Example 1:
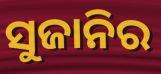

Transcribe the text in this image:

ସୁଜାନିର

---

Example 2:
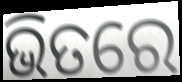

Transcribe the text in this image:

ଭିତରେ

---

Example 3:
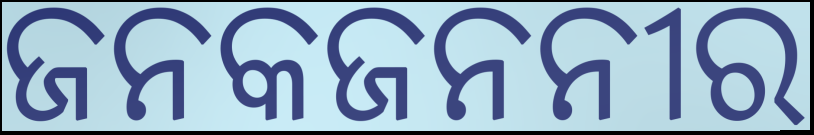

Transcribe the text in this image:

ଜନକଜନନୀର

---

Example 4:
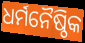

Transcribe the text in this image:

ଧର୍ମନୈଷ୍ଠିକ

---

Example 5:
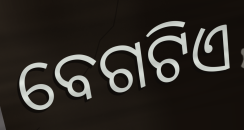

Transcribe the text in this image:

ବେଗଟିଏ